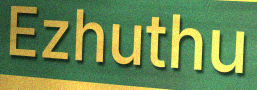
Ezhuthu